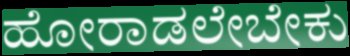
ಹೋರಾಡಲೇಬೇಕು